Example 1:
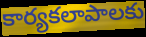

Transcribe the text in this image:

కార్యకలాపాలకు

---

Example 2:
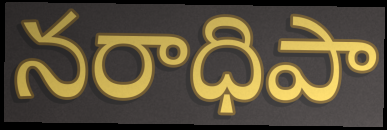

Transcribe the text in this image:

నరాధిపా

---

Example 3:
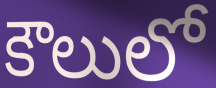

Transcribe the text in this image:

కౌలులో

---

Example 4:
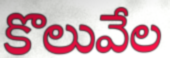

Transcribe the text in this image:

కొలువేల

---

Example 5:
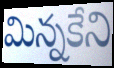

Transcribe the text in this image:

మిన్నకేని